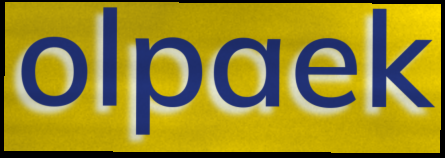
olpaek